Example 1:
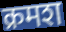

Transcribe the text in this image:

क्रमश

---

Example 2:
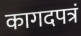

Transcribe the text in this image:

कागदपत्रं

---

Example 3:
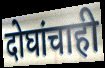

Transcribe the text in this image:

दोघांचाही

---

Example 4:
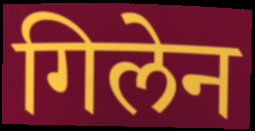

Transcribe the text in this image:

गिलेन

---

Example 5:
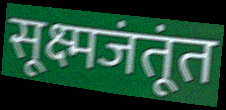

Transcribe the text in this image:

सूक्ष्मजंतूंत